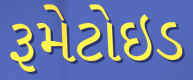
રૂમેટોઇડ